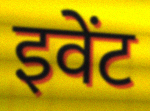
इवेंट